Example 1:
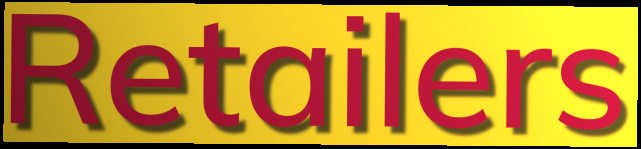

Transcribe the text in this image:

Retailers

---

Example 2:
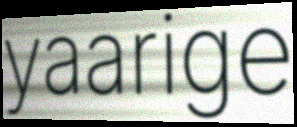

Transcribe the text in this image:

yaarige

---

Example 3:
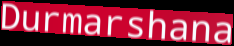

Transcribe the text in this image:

Durmarshana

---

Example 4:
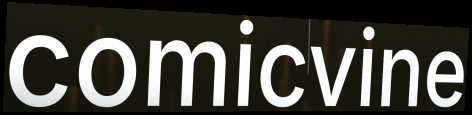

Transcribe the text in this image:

comicvine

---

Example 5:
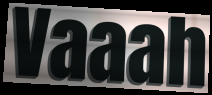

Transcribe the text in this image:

Vaaah